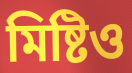
মিষ্টিও